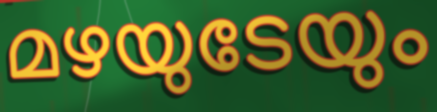
മഴയുടേയും